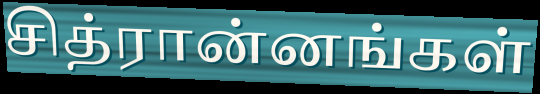
சித்ரான்னங்கள்